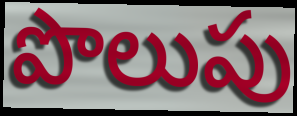
పొలుపు